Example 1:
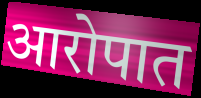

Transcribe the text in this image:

आरोपात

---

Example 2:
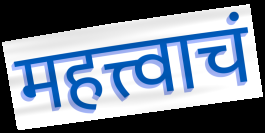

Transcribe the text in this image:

महत्त्वाचं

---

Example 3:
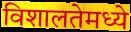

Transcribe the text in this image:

विशालतेमध्ये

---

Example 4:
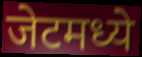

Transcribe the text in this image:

जेटमध्ये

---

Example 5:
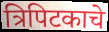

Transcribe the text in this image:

त्रिपिटकाचे